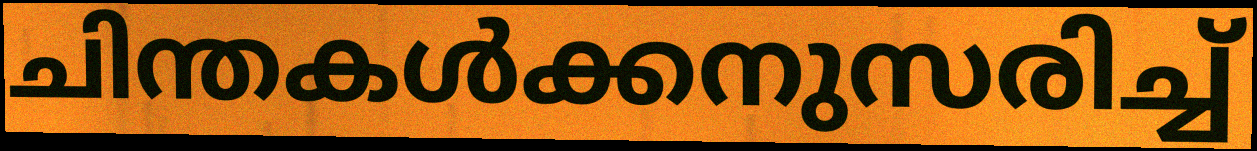
ചിന്തകൾക്കനുസരിച്ച്